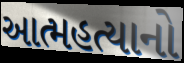
આત્મહત્યાનો